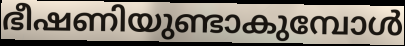
ഭീഷണിയുണ്ടാകുമ്പോൾ